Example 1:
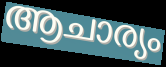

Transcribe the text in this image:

ആചാര്യം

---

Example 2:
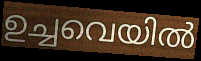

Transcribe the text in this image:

ഉച്ചവെയിൽ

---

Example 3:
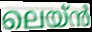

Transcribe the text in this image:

ലെയ്ൻ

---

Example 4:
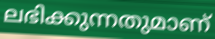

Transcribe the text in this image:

ലഭിക്കുന്നതുമാണ്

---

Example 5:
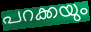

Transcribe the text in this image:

പറക്കയും